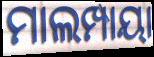
ମାଲମ୍ପାୟା